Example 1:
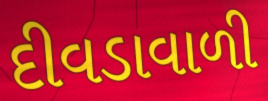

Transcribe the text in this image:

દીવડાવાળી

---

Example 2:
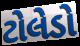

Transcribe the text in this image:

ટોલેડો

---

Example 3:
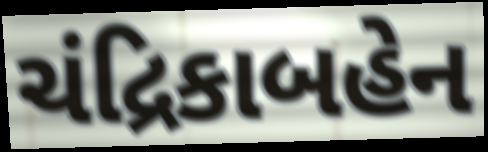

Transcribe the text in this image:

ચંદ્રિકાબહેન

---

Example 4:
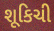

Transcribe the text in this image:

શૂકિચી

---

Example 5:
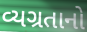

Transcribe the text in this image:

વ્યગ્રતાનો